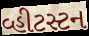
વ્હીટસ્ટન